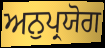
ਅਨੁਪ੍ਰਯੋਗ